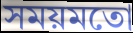
সময়মতো